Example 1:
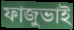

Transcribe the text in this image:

ফাজুভাই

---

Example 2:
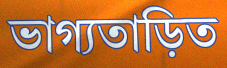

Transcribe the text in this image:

ভাগ্যতাড়িত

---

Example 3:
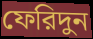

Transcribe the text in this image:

ফেরিদুন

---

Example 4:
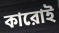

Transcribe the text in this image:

কারোই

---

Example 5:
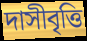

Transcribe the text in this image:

দাসীবৃত্তি